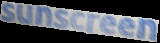
sunscreen